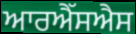
ਆਰਐੱਸਐਸ